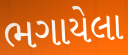
ભગાયેલા